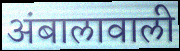
अंबालावाली